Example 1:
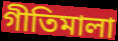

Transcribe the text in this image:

গীতিমালা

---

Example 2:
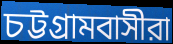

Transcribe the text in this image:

চট্টগ্রামবাসীরা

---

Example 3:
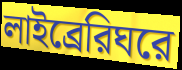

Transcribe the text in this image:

লাইব্রেরিঘরে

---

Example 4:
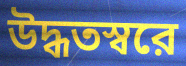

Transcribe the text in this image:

উদ্ধতস্বরে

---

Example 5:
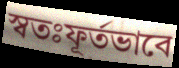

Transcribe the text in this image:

স্বতঃফূর্তভাবে